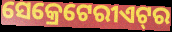
ସେକ୍ରେଟେରୀଏଟ୍‍ର